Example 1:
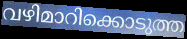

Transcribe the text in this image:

വഴിമാറിക്കൊടുത്ത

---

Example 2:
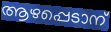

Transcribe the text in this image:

ആഴപ്പെടാന്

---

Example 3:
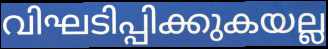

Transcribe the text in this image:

വിഘടിപ്പിക്കുകയല്ല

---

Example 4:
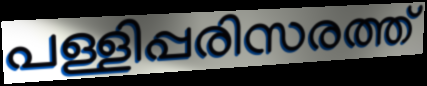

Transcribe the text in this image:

പള്ളിപ്പരിസരത്ത്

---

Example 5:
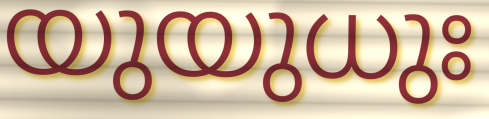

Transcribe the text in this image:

യുയുധുഃ